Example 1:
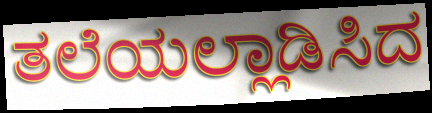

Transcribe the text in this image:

ತಲೆಯಲ್ಲಾಡಿಸಿದ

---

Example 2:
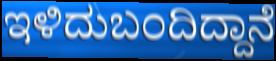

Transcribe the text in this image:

ಇಳಿದುಬಂದಿದ್ದಾನೆ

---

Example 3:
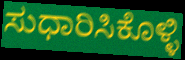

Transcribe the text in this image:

ಸುಧಾರಿಸಿಕೊಳ್ಳಿ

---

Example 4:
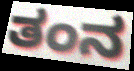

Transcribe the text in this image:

ತಂನ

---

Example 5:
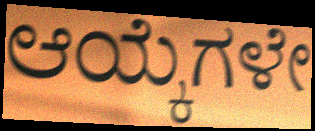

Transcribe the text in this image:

ಆಯ್ಕೆಗಳೇ